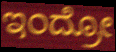
ಇಂದ್ರೋ